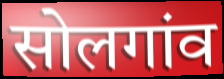
सोलगांव